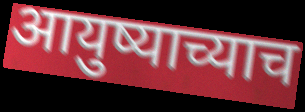
आयुष्याच्याच